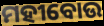
ମହୀବୋଉ